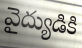
వైద్యుడికి